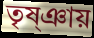
তৃষ্ঞায়